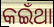
କଇଁଥା